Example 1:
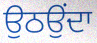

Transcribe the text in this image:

ਉਠਉਂਦਾ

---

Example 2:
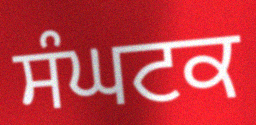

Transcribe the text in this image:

ਸੰਘਟਕ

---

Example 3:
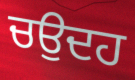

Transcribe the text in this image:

ਚਉਦਹ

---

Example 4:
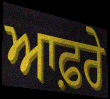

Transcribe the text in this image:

ਆਫ਼ਰੇ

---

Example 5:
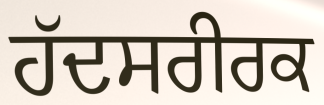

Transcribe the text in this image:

ਹੱਦਸਰੀਰਕ